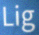
Lig